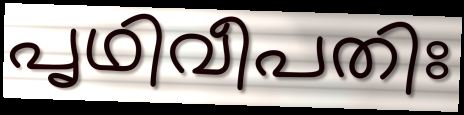
പൃഥിവീപതിഃ